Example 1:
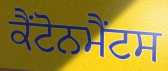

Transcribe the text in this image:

ਕੈਂਟੋਨਮੈਂਟਸ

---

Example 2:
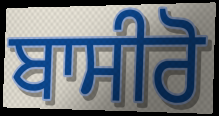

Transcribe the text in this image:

ਬਾਸੀਰੋ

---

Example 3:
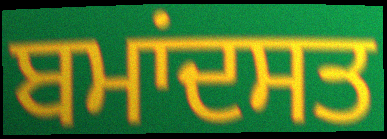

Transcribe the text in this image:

ਬਮਾਂਦਸਤ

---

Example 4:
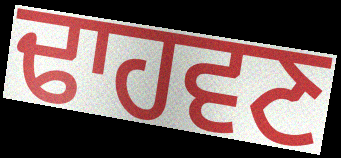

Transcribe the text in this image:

ਢਾਹਵਣ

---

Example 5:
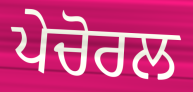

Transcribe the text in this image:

ਪੇਚੋਰਲ